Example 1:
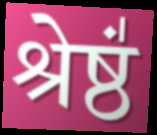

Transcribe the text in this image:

श्रेष्ठं॑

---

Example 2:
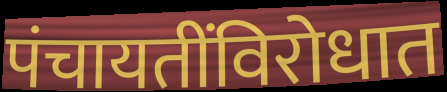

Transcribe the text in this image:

पंचायतींविरोधात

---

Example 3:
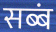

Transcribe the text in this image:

सब्बं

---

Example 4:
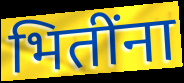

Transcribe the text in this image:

भितींना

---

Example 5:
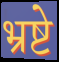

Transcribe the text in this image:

भ्रष्टे